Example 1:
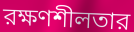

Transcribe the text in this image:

রক্ষণশীলতার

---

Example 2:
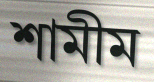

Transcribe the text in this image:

শামীম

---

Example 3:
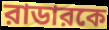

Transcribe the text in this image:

রাডারকে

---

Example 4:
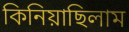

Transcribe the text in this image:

কিনিয়াছিলাম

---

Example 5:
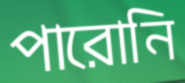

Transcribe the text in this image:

পারোনি